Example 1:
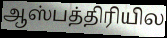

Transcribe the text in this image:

ஆஸ்பத்திரியில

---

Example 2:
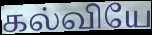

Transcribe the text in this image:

கல்வியே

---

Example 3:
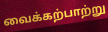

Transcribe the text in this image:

வைக்கற்பாற்று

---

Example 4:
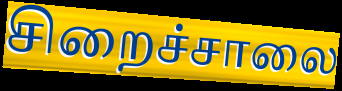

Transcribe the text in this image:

சிறைச்சாலை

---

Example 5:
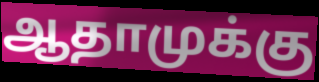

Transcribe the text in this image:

ஆதாமுக்கு